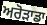
ਅਰੋੜਾਡਾ